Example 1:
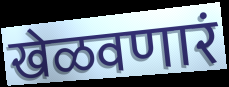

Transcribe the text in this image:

खेळवणारं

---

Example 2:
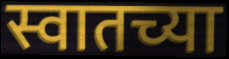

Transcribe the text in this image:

स्वातच्या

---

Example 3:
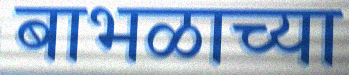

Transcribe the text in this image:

बाभळाच्या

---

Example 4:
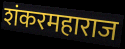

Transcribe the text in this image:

शंकरमहाराज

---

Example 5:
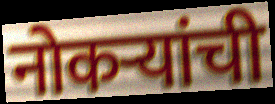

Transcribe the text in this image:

नोकऱ्यांची